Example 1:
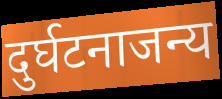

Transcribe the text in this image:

दुर्घटनाजन्य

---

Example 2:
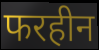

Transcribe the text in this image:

फरहीन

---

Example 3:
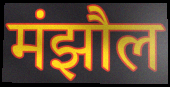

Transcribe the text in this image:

मंझौल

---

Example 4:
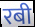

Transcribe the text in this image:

रबी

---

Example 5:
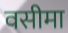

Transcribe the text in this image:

वसीमा